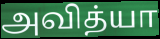
அவித்யா